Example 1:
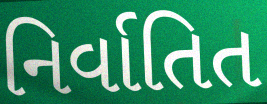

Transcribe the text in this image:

નિર્વાતિત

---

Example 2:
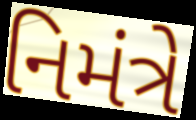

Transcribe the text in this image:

નિમંત્રે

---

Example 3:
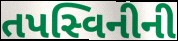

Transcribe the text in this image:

તપસ્વિનીની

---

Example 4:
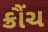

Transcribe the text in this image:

ક્રૌંચ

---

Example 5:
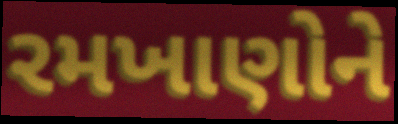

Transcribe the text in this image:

રમખાણોને